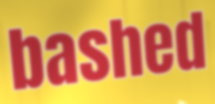
bashed